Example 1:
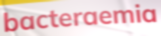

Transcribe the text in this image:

bacteraemia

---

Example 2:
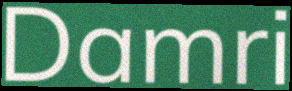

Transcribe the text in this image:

Damri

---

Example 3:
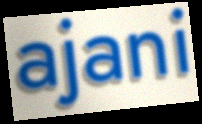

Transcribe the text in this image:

ajani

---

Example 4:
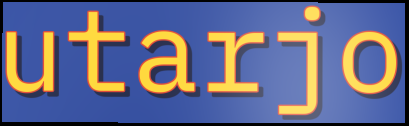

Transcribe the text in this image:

utarjo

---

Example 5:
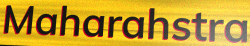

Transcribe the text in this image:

Maharahstra